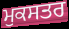
ਮੁਕਸਤਰ